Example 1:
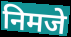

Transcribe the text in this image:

निमजे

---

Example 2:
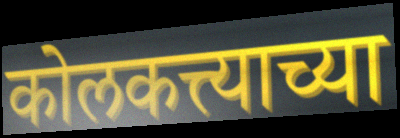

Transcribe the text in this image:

कोलकत्त्याच्या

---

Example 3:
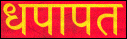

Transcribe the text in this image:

धपापत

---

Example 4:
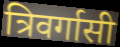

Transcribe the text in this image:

त्रिवर्गासी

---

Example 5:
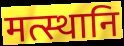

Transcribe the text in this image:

मत्स्थानि